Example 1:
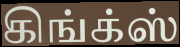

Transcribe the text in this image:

கிங்க்ஸ்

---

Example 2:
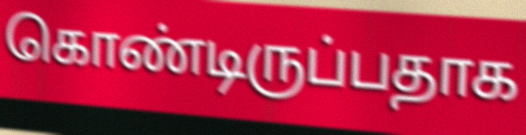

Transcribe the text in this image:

கொண்டிருப்பதாக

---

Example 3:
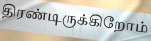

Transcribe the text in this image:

திரண்டிருக்கிறோம்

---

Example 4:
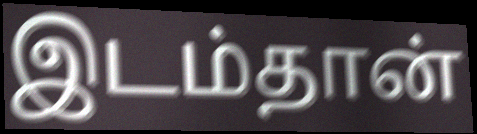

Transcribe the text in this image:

இடம்தான்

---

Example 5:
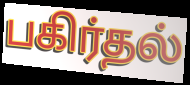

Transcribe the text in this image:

பகிர்தல்